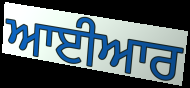
ਆਈਆਰ